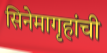
सिनेमागृहांची